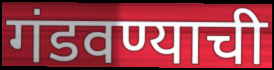
गंडवण्याची